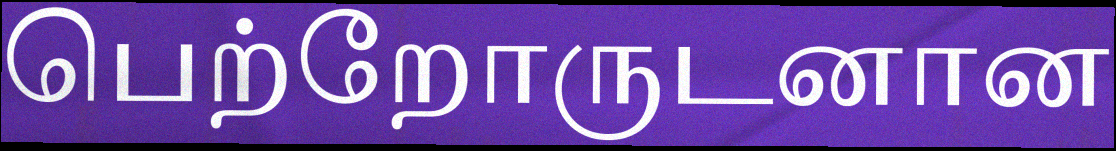
பெற்றோருடனான